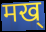
मख्